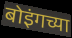
बोइंगच्या